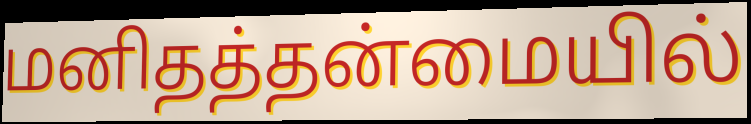
மனிதத்தன்மையில்